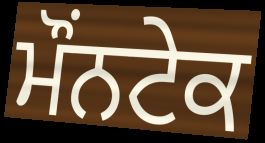
ਮੌਂਨਟੇਕ